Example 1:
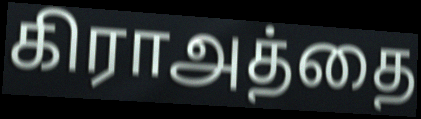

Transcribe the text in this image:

கிராஅத்தை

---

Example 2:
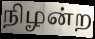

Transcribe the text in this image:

நிழன்ற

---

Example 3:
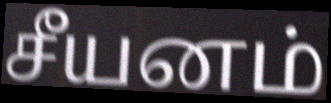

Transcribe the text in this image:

சீயனம்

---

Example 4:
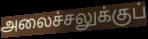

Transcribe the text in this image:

அலைச்சலுக்குப்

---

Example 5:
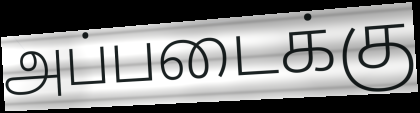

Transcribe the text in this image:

அப்படைக்கு